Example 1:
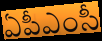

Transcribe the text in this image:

ఏపీఎంసీ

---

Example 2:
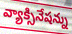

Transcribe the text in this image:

వ్యాక్సినేషన్ను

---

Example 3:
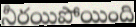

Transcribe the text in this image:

నీరయిపోయింది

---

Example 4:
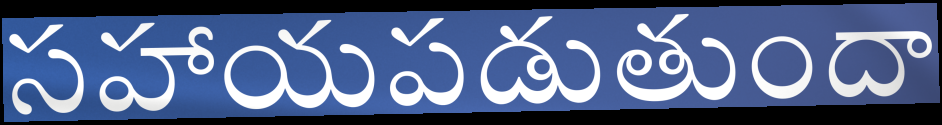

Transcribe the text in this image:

సహాయపడుతుందా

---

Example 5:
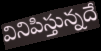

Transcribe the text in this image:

వినిపిస్తున్నదే